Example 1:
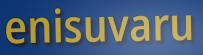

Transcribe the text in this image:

enisuvaru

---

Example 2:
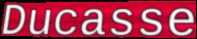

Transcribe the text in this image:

Ducasse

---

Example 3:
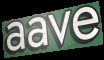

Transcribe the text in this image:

aave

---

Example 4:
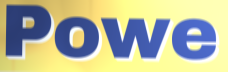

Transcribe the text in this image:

Powe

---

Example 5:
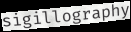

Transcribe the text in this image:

sigillography